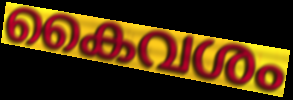
കൈവശം